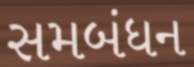
સમબંધન